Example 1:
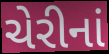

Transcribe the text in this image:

ચેરીનાં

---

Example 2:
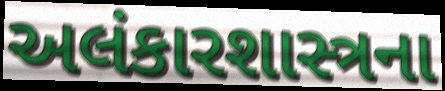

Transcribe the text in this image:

અલંકારશાસ્ત્રના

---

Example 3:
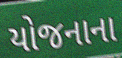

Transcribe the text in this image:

યોજનાના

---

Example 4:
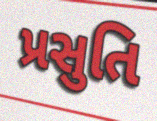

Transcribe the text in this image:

પ્રસુતિ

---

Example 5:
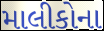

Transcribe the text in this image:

માલીકોના